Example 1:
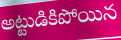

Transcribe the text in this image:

అట్టుడికిపోయిన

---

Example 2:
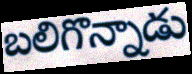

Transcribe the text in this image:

బలిగొన్నాడు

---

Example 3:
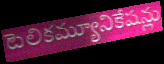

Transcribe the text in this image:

టెలికమ్యూనికేషన్లు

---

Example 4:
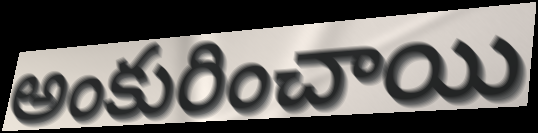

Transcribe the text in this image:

అంకురించాయి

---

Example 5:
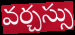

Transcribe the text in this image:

వర్చస్సు